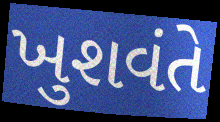
ખુશવંતે